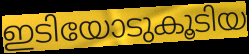
ഇടിയോടുകൂടിയ